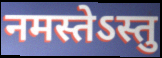
नमस्तेऽस्तु